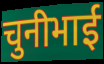
चुनीभाई